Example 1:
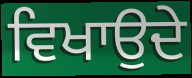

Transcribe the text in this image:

ਵਿਖਾਉਦੇ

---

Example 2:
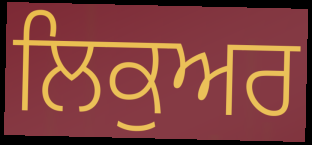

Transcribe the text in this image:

ਲਿਕੁਅਰ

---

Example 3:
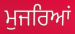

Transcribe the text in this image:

ਮੁਜਰਿਆਂ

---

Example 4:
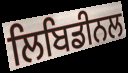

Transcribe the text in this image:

ਲਿਬਿਡੀਨਲ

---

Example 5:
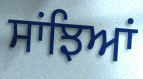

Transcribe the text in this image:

ਸਾਂਝਿਆਂ